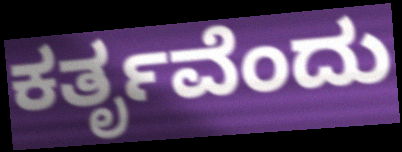
ಕರ್ತೃವೆಂದು